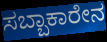
ಸಬ್ಬಾಕಾರೇನ